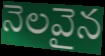
నెలవైన